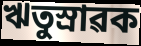
ঋতুস্ৰাৱক